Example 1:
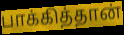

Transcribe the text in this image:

பாக்கித்தான்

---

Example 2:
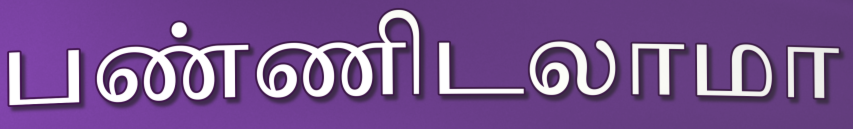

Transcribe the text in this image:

பண்ணிடலாமா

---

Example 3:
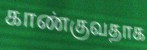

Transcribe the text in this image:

காண்குவதாக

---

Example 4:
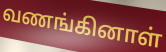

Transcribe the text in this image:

வணங்கினாள்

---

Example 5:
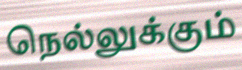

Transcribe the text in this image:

நெல்லுக்கும்